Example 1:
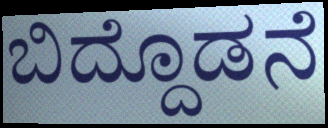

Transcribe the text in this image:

ಬಿದ್ದೊಡನೆ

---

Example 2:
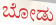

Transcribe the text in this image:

ಬೋಡು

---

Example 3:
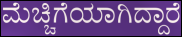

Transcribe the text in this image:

ಮೆಚ್ಚಿಗೆಯಾಗಿದ್ದಾರೆ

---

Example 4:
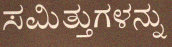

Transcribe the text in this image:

ಸಮಿತ್ತುಗಳನ್ನು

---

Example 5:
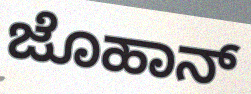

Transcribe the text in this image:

ಜೊಹಾನ್